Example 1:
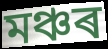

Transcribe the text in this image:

মঞ্চৰ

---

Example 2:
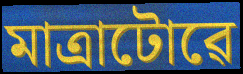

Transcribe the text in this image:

মাত্ৰাটোৱে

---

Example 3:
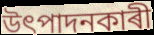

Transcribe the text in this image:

উৎপাদনকাৰী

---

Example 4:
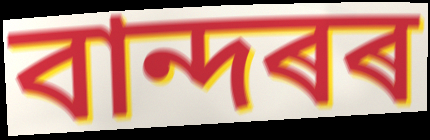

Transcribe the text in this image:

বান্দৰৰ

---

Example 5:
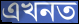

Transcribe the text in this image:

এখনত